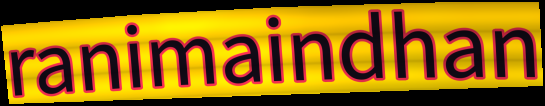
ranimaindhan